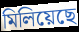
মিলিয়েছে